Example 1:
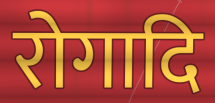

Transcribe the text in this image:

रोगादि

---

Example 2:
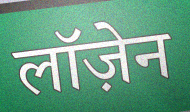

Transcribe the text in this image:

लॉज़ेन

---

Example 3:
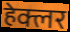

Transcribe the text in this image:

हेक्लर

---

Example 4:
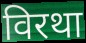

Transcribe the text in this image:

विरथा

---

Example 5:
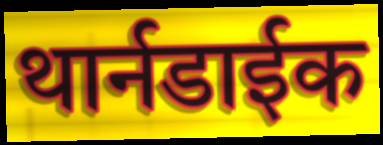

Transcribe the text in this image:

थार्नडाईक